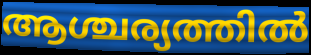
ആശ്ചര്യത്തിൽ